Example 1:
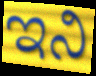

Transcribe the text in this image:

ಇನಿ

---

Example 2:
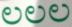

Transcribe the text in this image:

ಲಲಲ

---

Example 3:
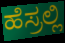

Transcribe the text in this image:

ಹೆಸ್ರಲ್ಲಿ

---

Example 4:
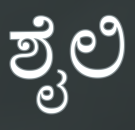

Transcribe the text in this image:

ಶೈಲಿ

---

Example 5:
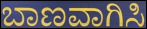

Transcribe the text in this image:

ಬಾಣವಾಗಿಸಿ